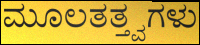
ಮೂಲತತ್ತ್ವಗಳು